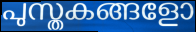
പുസ്തകങ്ങളോ